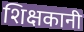
शिक्षकानी